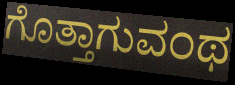
ಗೊತ್ತಾಗುವಂಥ